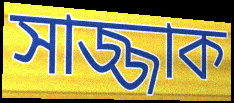
সাজ্জাক